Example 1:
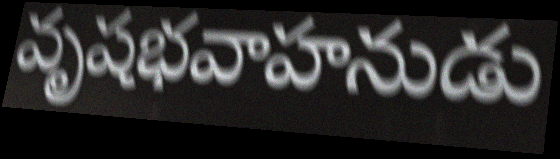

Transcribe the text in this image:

వృషభవాహనుడు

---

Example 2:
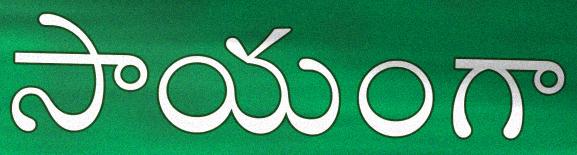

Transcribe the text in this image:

సాయంగా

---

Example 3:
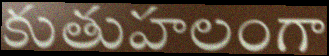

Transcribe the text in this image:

కుతుహలంగా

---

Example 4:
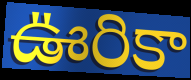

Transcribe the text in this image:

ఊరికా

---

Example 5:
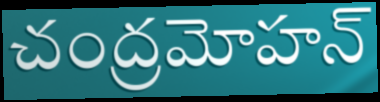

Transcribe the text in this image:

చంద్రమోహన్